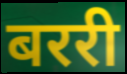
बररी